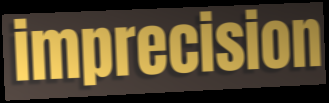
imprecision